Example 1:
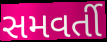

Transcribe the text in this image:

સમવર્તી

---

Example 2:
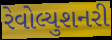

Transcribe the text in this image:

રેવોલ્યુશનરી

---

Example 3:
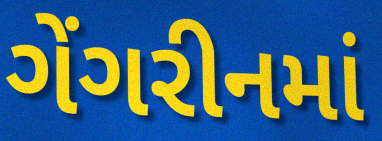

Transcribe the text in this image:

ગેંગરીનમાં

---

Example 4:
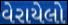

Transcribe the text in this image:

વેરાયેલો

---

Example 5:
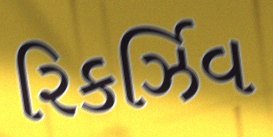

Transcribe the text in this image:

રિકર્ઝિવ